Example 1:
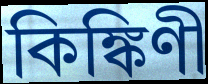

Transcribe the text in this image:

কিঙ্কিণী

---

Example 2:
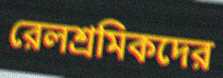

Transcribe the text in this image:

রেলশ্রমিকদের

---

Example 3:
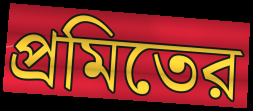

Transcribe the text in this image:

প্রমিতের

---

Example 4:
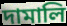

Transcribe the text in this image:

দামালি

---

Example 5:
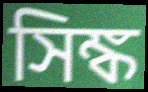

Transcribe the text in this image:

সিঙ্ক